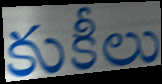
కుకీలు